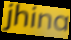
jhina